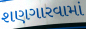
શણગારવામાં